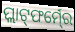
ପ୍ଲାଟ୍‍ଫର୍ମ୍‍ରେ